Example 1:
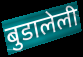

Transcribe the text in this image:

बुडालेली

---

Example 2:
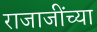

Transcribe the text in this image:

राजाजींच्या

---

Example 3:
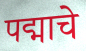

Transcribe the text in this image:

पद्माचे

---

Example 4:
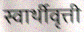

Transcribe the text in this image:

स्वार्थीवृत्ती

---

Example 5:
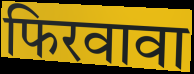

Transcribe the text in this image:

फिरवावा